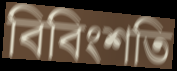
বিবিংশতি